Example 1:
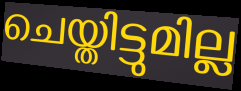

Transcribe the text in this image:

ചെയ്തിട്ടുമില്ല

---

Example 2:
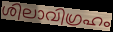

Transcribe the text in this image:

ശിലാവിഗ്രഹം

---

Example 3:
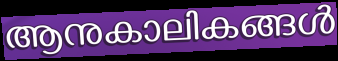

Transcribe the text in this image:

ആനുകാലികങ്ങൾ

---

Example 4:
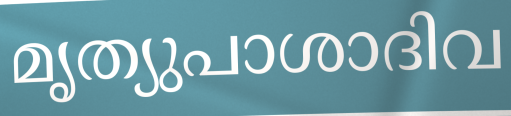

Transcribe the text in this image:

മൃത്യുപാശാദിവ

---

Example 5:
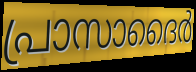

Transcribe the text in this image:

പ്രാസാദൈർ